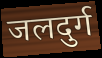
जलदुर्ग